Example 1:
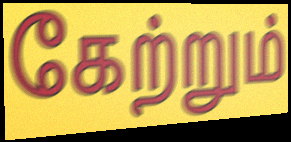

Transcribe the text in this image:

கேற்றும்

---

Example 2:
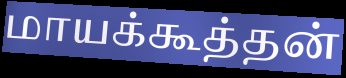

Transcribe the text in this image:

மாயக்கூத்தன்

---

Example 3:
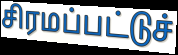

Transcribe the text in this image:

சிரமப்பட்டுச்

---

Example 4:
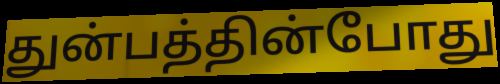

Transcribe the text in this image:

துன்பத்தின்போது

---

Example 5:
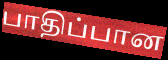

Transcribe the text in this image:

பாதிப்பான